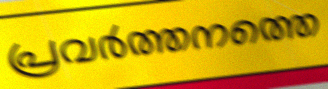
പ്രവർത്തനത്തെ